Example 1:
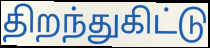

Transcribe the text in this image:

திறந்துகிட்டு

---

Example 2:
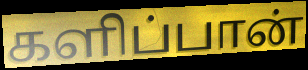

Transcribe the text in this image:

களிப்பான்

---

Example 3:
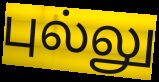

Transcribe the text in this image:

புல்லு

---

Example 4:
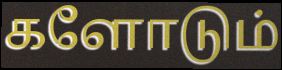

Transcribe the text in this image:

களோடும்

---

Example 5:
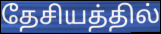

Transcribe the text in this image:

தேசியத்தில்